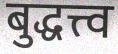
बुद्धत्त्व